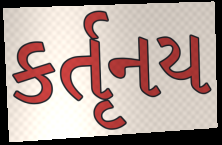
કર્તૃનય